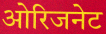
ओरिजनेट